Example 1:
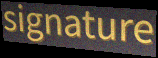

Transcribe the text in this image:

signature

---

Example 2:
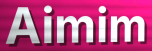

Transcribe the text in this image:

Aimim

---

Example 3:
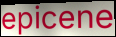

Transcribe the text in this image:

epicene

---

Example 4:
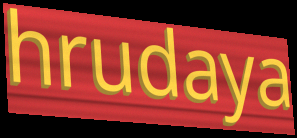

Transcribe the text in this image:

hrudaya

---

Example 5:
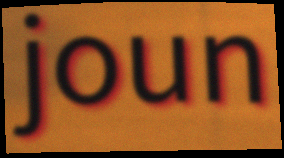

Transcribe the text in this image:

joun